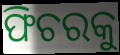
ଫିଚରକୁ